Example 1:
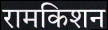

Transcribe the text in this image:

रामकिशन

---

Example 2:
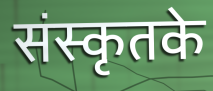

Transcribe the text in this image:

संस्कृतके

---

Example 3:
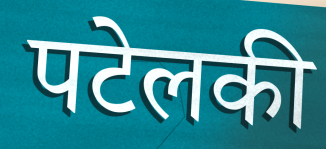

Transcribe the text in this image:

पटेलकी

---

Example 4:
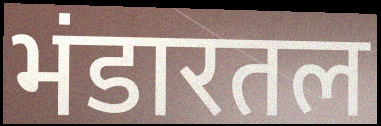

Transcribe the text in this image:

भंडारतल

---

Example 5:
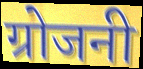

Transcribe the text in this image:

ग्रोजनी